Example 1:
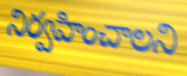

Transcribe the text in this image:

నిర్వహించాలని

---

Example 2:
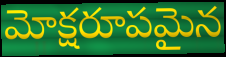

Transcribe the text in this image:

మోక్షరూపమైన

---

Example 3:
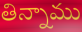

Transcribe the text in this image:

తిన్నాము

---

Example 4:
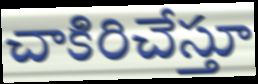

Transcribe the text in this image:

చాకిరిచేస్తూ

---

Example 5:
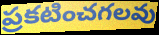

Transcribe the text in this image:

ప్రకటించగలవు